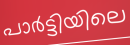
പാർട്ടിയിലെ